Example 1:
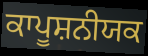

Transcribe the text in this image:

ਕਾਪੂਸ਼ਨੀਯਕ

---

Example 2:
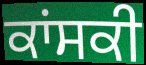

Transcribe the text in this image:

ਕਾਂਸਕੀ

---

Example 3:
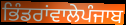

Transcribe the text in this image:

ਭਿੰਡਰਾਂਵਾਲੇਪੰਜਾਬ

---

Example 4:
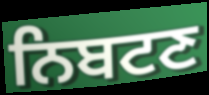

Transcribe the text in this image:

ਨਿਬਟਣ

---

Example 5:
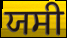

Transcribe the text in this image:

ਯਸੀ